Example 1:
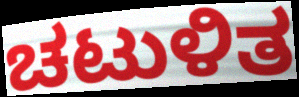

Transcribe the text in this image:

ಚಟುಳಿತ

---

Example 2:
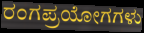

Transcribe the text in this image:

ರಂಗಪ್ರಯೋಗಗಳು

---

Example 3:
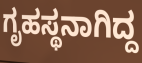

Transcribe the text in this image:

ಗೃಹಸ್ಥನಾಗಿದ್ದ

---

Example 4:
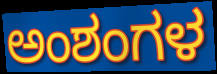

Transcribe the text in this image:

ಅಂಶಂಗಳ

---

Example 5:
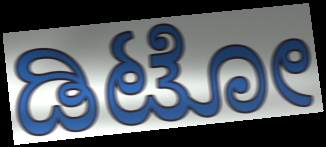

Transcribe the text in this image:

ಡಿಟೋ